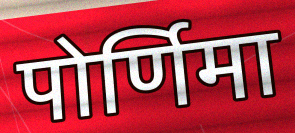
पोर्णिमा